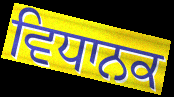
ਵਿਧਾਨਕ